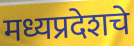
मध्यप्रदेशचे